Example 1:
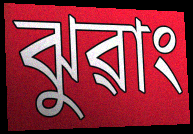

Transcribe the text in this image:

ঝুৱাং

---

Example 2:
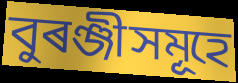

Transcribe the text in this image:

বুৰঞ্জীসমূহে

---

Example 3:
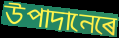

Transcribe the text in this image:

উপাদানেৰে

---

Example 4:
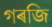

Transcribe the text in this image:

গৰজি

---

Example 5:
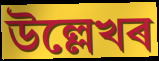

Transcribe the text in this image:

উল্লেখৰ